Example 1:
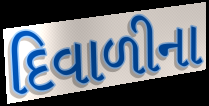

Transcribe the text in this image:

દિવાળીના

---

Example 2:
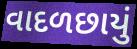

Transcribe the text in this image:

વાદળછાયું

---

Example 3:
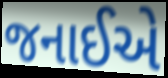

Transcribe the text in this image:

જનાઈએ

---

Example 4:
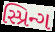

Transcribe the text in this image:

સ્પ્રિન્ગ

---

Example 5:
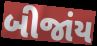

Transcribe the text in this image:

બીજાંય